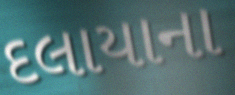
દલાયાના